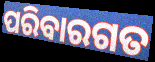
ପରିବାରଗତ